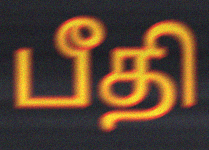
பீதி